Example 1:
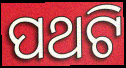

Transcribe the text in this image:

ପଥଟି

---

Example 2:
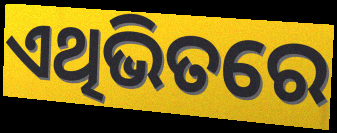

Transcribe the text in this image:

ଏଥିଭିତରେ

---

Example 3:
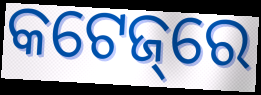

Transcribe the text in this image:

କଟେଜ୍‌ରେ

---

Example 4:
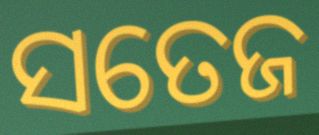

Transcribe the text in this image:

ସତେଜ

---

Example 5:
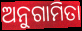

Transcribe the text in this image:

ଅନୁଗାମିତା